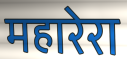
महारेरा